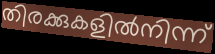
തിരക്കുകളിൽനിന്ന്